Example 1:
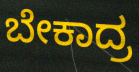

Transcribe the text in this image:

ಬೇಕಾದ್ರ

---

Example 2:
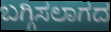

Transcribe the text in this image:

ಬಗ್ಗಿಸಲಾಗದ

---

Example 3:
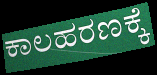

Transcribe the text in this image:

ಕಾಲಹರಣಕ್ಕೆ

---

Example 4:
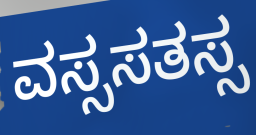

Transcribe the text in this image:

ವಸ್ಸಸತಸ್ಸ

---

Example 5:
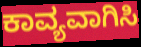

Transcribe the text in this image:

ಕಾವ್ಯವಾಗಿಸಿ